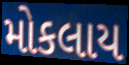
મોકલાય